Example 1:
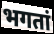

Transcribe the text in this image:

भगतां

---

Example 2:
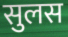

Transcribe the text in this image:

सुलस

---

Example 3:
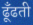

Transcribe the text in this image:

ढूँढती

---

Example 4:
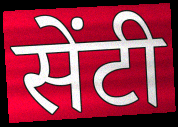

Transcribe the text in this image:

सेंटी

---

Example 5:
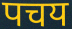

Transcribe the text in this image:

पचय